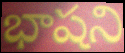
భాషని